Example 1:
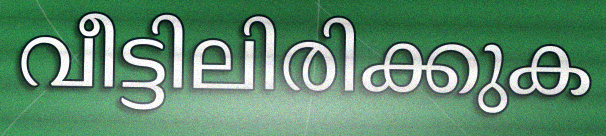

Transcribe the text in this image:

വീട്ടിലിരിക്കുക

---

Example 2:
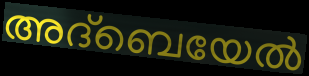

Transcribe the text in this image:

അദ്ബെയേൽ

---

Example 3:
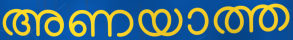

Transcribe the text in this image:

അണയാത്ത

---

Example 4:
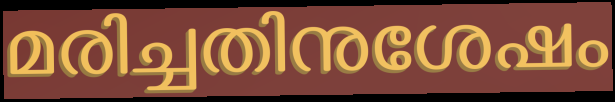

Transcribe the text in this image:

മരിച്ചതിനുശേഷം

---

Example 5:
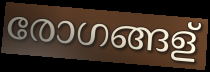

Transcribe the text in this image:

രോഗങ്ങള്